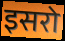
इसरो